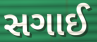
સગાઈ